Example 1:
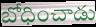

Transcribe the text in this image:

బోధించాడు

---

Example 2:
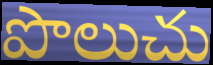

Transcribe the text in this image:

పొలుచు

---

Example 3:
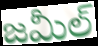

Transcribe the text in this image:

జమీల్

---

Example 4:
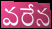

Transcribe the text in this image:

వరేన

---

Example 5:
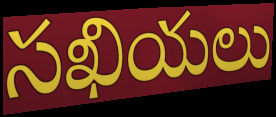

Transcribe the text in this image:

సఖియలు